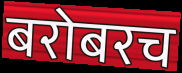
बरोबरच